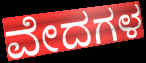
ವೇದಗಳ